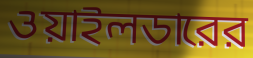
ওয়াইলডারের